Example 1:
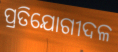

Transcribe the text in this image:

ପ୍ରତିଯୋଗୀଦଳ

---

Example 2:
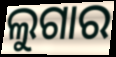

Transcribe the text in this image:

ଲୁଗାର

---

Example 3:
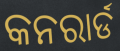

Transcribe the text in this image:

କନରାର୍ଡ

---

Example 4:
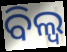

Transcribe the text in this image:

ବିଲ୍ଵ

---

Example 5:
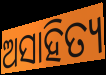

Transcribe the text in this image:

ଅସାହିତ୍ୟ